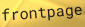
frontpage